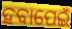
ହବାପେଇଁ